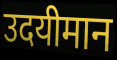
उदयीमान